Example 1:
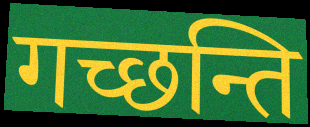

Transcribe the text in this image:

गच्छन्ति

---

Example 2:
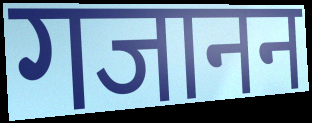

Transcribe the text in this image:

गजानन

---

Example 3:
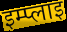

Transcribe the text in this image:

इम्प्लाइ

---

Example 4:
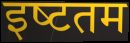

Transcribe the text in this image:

इष्‍टतम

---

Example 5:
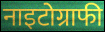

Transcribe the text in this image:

नाइटोग्राफी